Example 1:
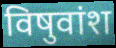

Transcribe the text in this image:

विषुवांश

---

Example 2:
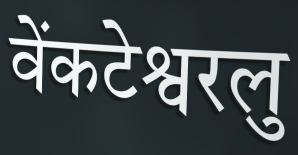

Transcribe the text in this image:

वेंकटेश्वरलु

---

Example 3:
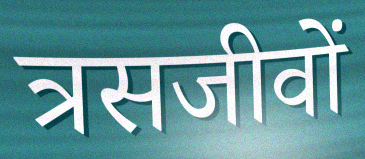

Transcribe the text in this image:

त्रसजीवों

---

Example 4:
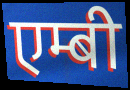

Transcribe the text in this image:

एम्बी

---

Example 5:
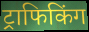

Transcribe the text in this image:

ट्राफिकिंग